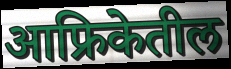
आफ्रिकेतील